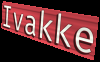
Ivakke